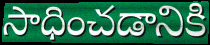
సాధించడానికి